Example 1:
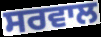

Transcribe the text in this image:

ਸਰਵਾਲ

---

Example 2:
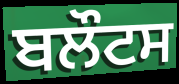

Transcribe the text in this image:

ਬਲੌਟਸ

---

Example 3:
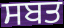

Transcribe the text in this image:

ਸਬਤ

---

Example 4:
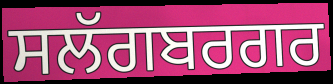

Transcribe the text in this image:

ਸਲੱਗਬਰਗਰ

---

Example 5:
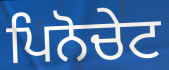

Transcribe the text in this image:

ਪਿਨੋਚੇਟ